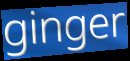
ginger